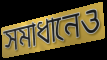
সমাধানেও